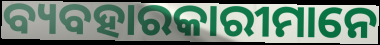
ବ୍ୟବହାରକାରୀମାନେ